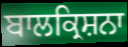
ਬਾਲਕ੍ਰਿਸ਼ਨਾ